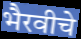
भैरवीचे